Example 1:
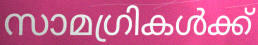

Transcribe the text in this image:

സാമഗ്രികൾക്ക്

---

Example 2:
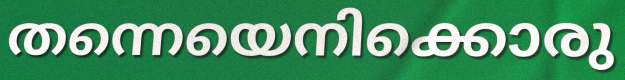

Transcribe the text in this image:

തന്നെയെനിക്കൊരു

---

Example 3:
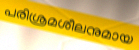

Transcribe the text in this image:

പരിശ്രമശീലനുമായ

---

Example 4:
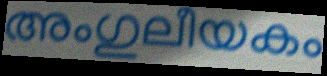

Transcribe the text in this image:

അംഗുലീയകം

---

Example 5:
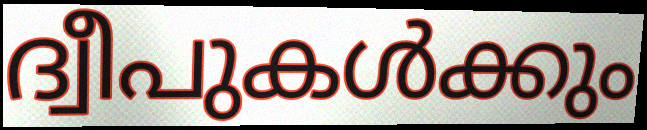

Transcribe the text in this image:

ദ്വീപുകൾക്കും